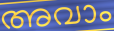
അവാം